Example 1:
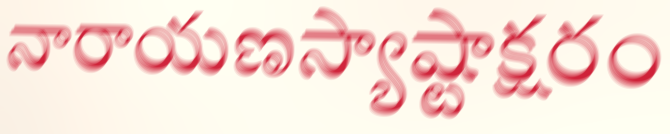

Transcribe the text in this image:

నారాయణస్యాష్టాక్షరం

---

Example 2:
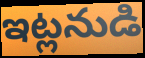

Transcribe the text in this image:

ఇట్లనుడి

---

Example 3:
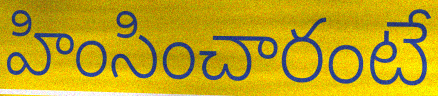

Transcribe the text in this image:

హింసించారంటే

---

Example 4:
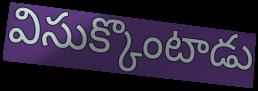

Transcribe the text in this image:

విసుక్కొంటాడు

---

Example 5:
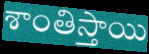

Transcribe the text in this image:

శాంతిస్తాయి